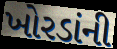
ખોરડાંની